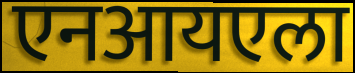
एनआयएला